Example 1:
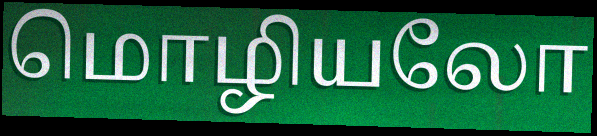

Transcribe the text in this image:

மொழியலோ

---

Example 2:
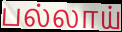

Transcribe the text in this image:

பல்லாய்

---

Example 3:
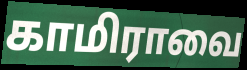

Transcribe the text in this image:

காமிராவை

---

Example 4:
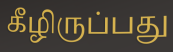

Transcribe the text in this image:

கீழிருப்பது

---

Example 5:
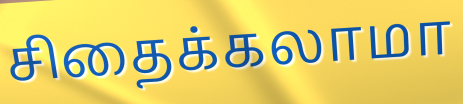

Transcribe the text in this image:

சிதைக்கலாமா